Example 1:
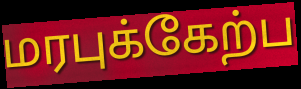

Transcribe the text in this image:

மரபுக்கேற்ப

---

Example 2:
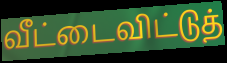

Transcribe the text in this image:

வீட்டைவிட்டுத்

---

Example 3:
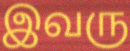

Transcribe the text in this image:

இவரு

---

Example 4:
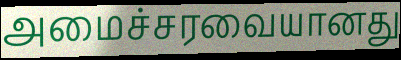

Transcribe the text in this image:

அமைச்சரவையானது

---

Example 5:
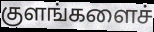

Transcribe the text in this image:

குளங்களைச்